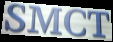
SMCT